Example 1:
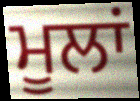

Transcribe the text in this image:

ਮੂਲਾਂ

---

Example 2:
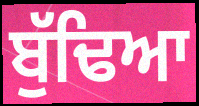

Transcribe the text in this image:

ਬੁੱਢਿਆ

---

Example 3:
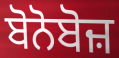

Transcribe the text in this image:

ਬੋਨੋਬੋਜ਼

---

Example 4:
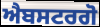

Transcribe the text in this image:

ਐਬਸਟਰਗੋ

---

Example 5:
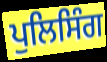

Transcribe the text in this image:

ਪੁਲਿਸਿੰਗ